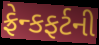
ફ્રેન્કફર્ટની